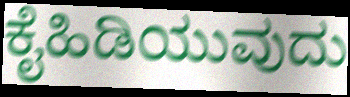
ಕೈಹಿಡಿಯುವುದು